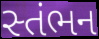
સ્તંભન